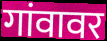
गांवावर